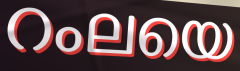
റംലയെ